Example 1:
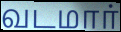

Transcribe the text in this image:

வடமார்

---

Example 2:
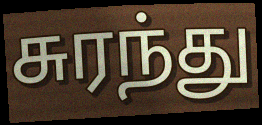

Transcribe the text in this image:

சுரந்து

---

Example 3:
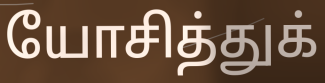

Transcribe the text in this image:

யோசித்துக்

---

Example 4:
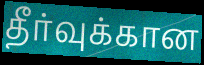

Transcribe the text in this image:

தீர்வுக்கான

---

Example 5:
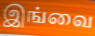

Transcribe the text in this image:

இங்வை